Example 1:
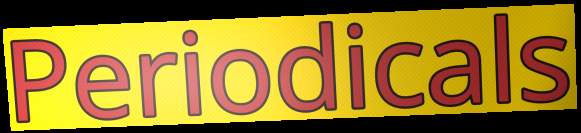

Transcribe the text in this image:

Periodicals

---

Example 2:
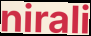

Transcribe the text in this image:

nirali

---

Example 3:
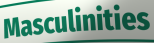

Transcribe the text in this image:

Masculinities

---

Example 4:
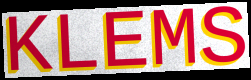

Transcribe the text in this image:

KLEMS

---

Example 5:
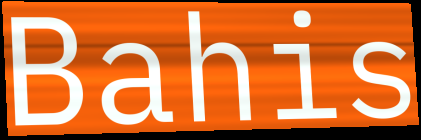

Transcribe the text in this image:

Bahis